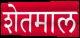
शेतमाल